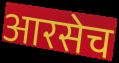
आरसेच